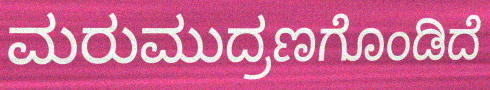
ಮರುಮುದ್ರಣಗೊಂಡಿದೆ